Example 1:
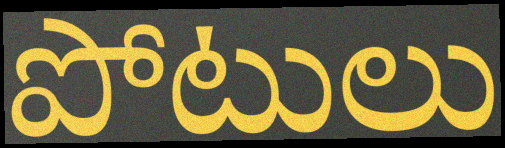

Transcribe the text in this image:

పోటులు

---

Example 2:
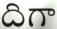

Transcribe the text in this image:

దిగా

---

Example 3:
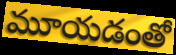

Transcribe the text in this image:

మూయడంతో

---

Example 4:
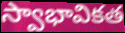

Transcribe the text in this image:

స్వాభావికత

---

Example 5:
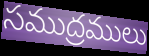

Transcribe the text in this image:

సముద్రములు